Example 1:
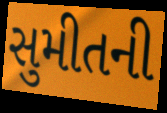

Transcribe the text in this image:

સુમીતની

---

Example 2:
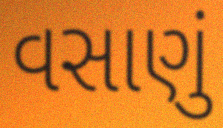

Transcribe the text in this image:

વસાણું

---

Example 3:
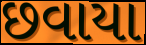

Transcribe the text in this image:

છવાયા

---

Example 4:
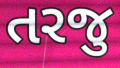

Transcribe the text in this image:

તરજુ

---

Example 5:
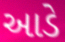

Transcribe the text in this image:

આડે